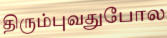
திரும்புவதுபோல